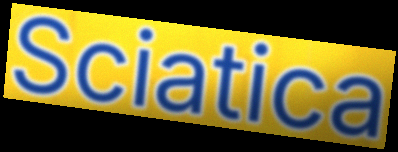
Sciatica